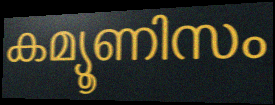
കമ്യൂണിസം